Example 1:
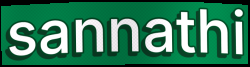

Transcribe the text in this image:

sannathi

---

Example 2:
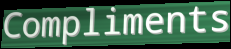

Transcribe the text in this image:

Compliments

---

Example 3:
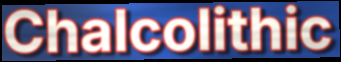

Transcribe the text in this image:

Chalcolithic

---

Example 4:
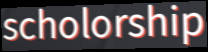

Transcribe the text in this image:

scholorship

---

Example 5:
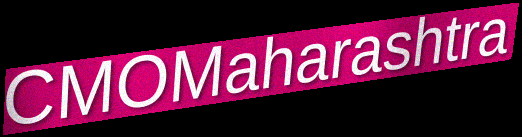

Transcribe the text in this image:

CMOMaharashtra